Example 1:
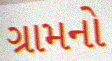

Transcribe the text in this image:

ગ્રામનો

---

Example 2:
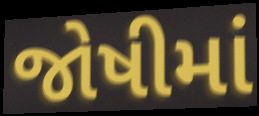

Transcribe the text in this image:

જોષીમાં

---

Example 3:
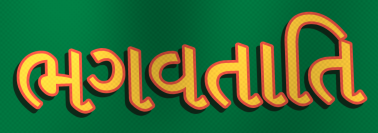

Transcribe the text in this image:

ભગવતાતિ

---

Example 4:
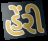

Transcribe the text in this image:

હેંરી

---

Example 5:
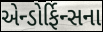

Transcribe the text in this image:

એન્ડોર્ફિન્સના